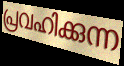
പ്രവഹിക്കുന്ന